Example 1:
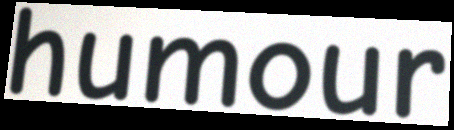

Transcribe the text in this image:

humour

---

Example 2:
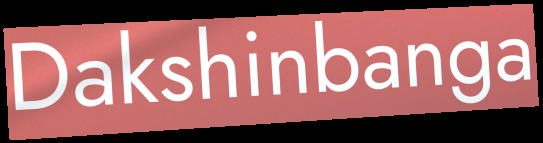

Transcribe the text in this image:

Dakshinbanga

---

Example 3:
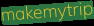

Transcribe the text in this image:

makemytrip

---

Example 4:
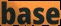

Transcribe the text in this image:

base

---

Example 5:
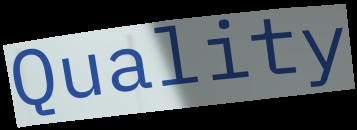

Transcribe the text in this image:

Quality